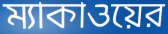
ম্যাকাওয়ের